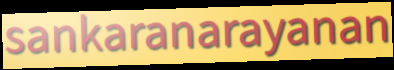
sankaranarayanan